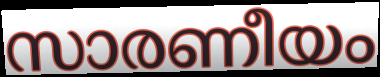
സാരണീയം